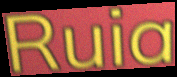
Ruia